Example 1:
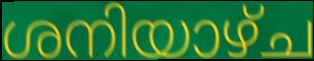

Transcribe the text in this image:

ശനിയാഴ്ച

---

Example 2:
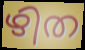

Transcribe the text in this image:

ഴിത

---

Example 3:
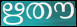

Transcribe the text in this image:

ഋതൗ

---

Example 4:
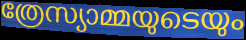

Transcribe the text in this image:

ത്രേസ്യാമ്മയുടെയും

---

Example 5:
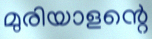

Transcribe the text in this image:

മുരിയാളന്റെ